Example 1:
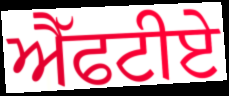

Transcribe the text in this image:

ਐੱਫਟੀਏ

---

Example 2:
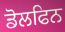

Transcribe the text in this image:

ਡੋਲਫਿਨ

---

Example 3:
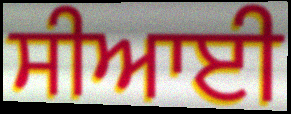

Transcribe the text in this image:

ਸੀਆਈ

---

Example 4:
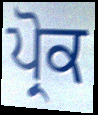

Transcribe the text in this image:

ਪ੍ਰੋਕ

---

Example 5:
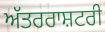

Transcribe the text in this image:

ਅੱਤਰਰਾਸ਼ਟਰੀ